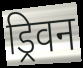
ड्रिवन